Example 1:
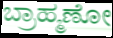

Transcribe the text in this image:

ಬ್ರಾಹ್ಮಣೋ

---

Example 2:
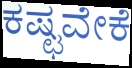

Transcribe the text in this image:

ಕಷ್ಟವೇಕೆ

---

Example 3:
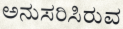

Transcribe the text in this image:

ಅನುಸರಿಸಿರುವ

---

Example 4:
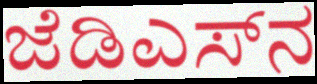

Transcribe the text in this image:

ಜೆಡಿಎಸ್‌ನ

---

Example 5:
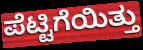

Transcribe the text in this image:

ಪೆಟ್ಟಿಗೆಯಿತ್ತು